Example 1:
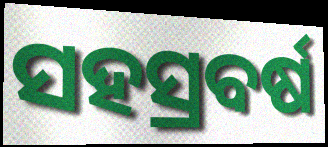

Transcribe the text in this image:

ସହସ୍ରବର୍ଷ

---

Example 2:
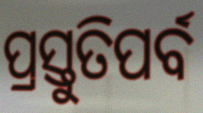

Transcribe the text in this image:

ପ୍ରସ୍ତୁତିପର୍ବ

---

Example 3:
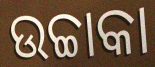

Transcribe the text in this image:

ଉଚ୍ଚାକା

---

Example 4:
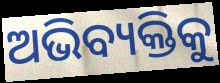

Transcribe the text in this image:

ଅଭିବ୍ୟକ୍ତିକୁ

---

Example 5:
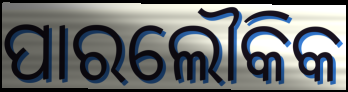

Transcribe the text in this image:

ପାରଲୌକିକ